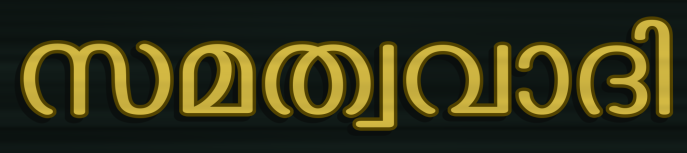
സമത്വവാദി